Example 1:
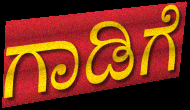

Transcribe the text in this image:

ಗಾಡಿಗೆ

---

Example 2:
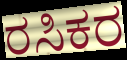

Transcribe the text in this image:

ರಸಿಕರ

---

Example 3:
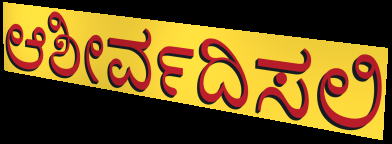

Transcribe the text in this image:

ಆಶೀರ್ವದಿಸಲಿ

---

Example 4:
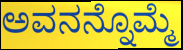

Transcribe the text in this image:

ಅವನನ್ನೊಮ್ಮೆ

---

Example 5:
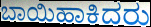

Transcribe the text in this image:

ಬಾಯಿಹಾಕಿದರು